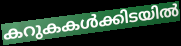
കറുകകൾക്കിടയിൽ